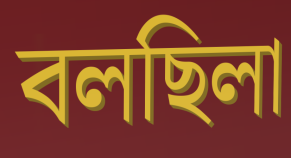
বলছিলা